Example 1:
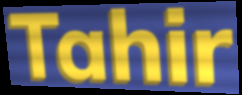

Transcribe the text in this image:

Tahir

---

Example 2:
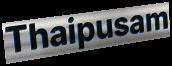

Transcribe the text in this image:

Thaipusam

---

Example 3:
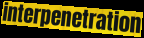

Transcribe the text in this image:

interpenetration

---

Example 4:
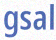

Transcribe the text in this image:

gsal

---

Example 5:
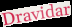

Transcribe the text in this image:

Dravidar